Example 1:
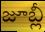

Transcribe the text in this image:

జూబ్లీ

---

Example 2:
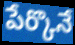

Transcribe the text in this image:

పేర్కొనే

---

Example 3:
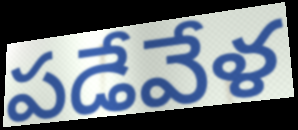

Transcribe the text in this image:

పడేవేళ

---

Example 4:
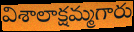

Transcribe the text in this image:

విశాలాక్షమ్మగారు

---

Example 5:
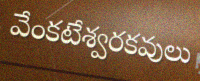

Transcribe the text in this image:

వేంకటేశ్వరకవులు